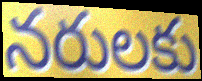
నరులకు